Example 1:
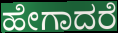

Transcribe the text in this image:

ಹೇಗಾದರೆ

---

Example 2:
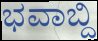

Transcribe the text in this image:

ಭವಾಬ್ದಿ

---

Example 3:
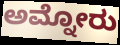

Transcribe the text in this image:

ಅಮ್ನೋರು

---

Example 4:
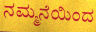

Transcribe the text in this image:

ನಮ್ಮನೆಯಿಂದ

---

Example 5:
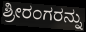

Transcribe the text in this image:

ಶ್ರೀರಂಗರನ್ನು